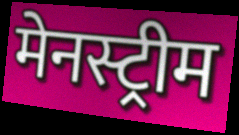
मेनस्‍ट्रीम